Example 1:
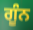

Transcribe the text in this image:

ਗੂੰਨ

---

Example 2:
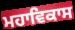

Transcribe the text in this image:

ਮਹਾਵਿਕਾਸ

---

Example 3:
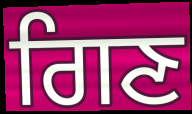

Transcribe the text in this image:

ਗਿਣ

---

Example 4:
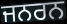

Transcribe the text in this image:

ਜਨਰਨ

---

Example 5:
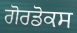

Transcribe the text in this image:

ਗੋਰਡੋਕਸ